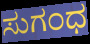
ಸುಗಂಧ